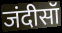
जंदीसॉ